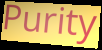
Purity